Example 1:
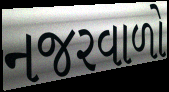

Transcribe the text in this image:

નજરવાળો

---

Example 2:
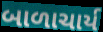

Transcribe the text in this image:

બાળાચાર્ય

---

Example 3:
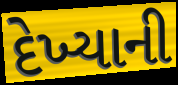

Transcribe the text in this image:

દેખ્યાની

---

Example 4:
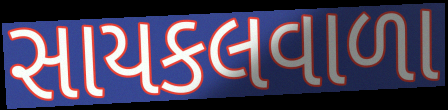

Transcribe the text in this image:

સાયકલવાળા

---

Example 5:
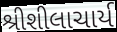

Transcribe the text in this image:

શ્રીશીલાચાર્ય